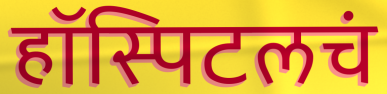
हॉस्पिटलचं